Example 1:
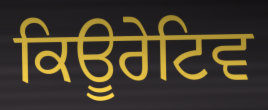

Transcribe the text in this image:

ਕਿਊਰੇਟਿਵ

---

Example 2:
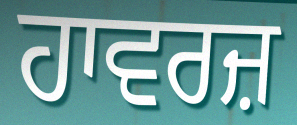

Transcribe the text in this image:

ਹਾਵਰਜ਼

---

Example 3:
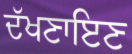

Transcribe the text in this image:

ਦੱਖਣਾਇਣ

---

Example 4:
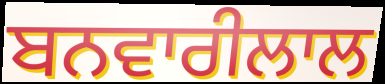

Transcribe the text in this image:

ਬਨਵਾਰੀਲਾਲ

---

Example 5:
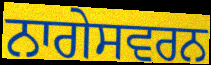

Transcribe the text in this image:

ਨਾਗੇਸਵਰਨ